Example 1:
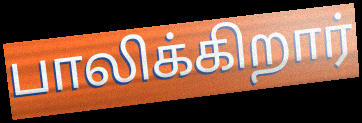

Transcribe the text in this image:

பாலிக்கிறார்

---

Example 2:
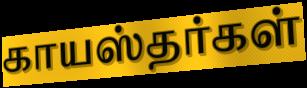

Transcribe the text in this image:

காயஸ்தர்கள்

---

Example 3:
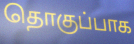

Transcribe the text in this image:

தொகுப்பாக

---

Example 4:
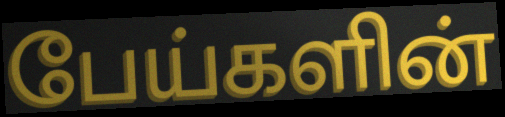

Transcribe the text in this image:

பேய்களின்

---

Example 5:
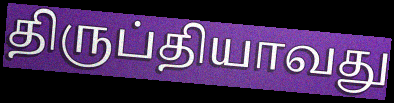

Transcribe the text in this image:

திருப்தியாவது